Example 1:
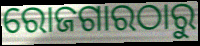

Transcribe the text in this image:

ରୋଜଗାରଠାରୁ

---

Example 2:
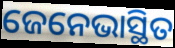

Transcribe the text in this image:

ଜେନେଭାସ୍ଥିତ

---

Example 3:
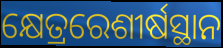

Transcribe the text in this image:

କ୍ଷେତ୍ରରେଶୀର୍ଷସ୍ଥାନ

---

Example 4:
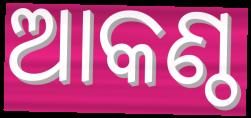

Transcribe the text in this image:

ଆକଣ୍ଠ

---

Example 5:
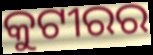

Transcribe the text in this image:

କୁଟୀରର